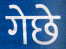
गेछे